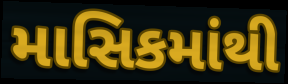
માસિકમાંથી